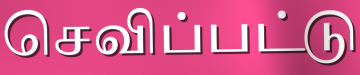
செவிப்பட்டு